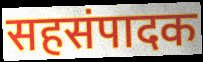
सहसंपादक